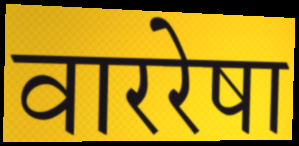
वाररेषा